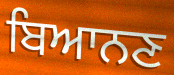
ਬਿਆਨਣ